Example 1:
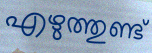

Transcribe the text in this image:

എഴുത്തുണ്ട്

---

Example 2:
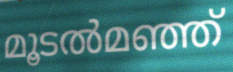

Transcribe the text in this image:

മൂടൽമഞ്ഞ്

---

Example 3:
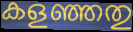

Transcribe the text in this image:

കളഞ്ഞതു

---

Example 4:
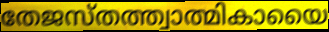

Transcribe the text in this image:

തേജസ്തത്ത്വാത്മികായൈ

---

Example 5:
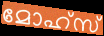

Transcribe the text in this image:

മോഹ്സ്